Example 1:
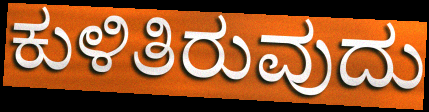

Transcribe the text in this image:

ಕುಳಿತಿರುವುದು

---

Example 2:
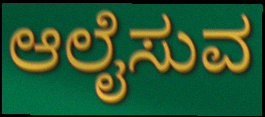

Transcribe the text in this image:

ಆಲೈಸುವ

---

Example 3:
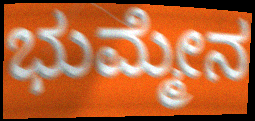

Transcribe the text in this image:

ಭುಮ್ಮೇನ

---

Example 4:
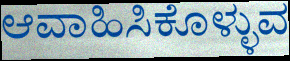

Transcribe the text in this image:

ಆವಾಹಿಸಿಕೊಳ್ಳುವ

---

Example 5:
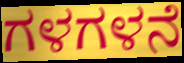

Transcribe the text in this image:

ಗಳಗಳನೆ